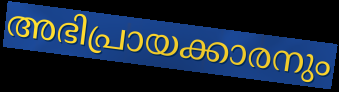
അഭിപ്രായക്കാരനും